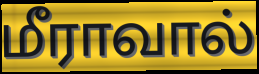
மீராவால்